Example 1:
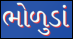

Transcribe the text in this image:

ભોળુડાં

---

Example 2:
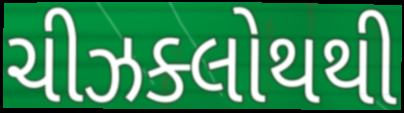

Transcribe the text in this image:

ચીઝક્લોથથી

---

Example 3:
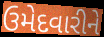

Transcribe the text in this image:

ઉમેદવારીને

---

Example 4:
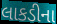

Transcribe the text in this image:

લાકડીના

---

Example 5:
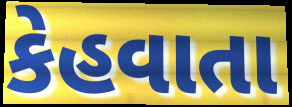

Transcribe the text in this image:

કેહવાતા